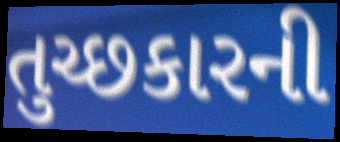
તુચ્છકારની